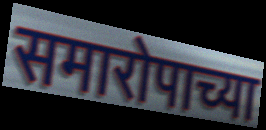
समारोपाच्या